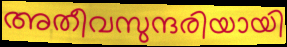
അതീവസുന്ദരിയായി